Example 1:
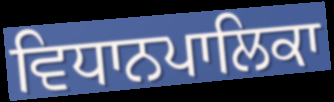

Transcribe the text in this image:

ਵਿਧਾਨਪਾਲਿਕਾ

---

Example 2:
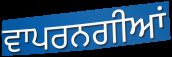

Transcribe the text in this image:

ਵਾਪਰਨਗੀਆਂ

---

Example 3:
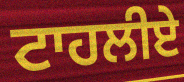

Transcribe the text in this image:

ਟਾਹਲੀਏ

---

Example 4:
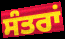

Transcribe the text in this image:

ਸੰਤਰਾਂ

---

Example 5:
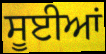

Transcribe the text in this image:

ਸੂਈਆਂ